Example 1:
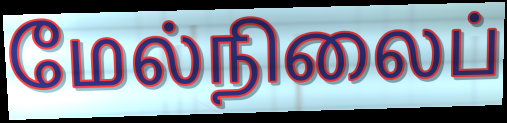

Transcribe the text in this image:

மேல்நிலைப்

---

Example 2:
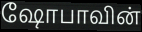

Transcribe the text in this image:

ஷோபாவின்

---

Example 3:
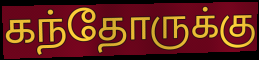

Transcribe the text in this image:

கந்தோருக்கு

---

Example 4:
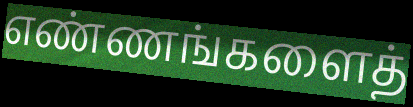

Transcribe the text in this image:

எண்ணங்களைத்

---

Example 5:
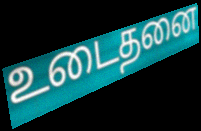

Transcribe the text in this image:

உடைதனை